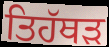
ਤਿਹੱਥੜ